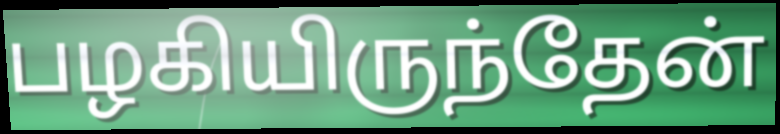
பழகியிருந்தேன்